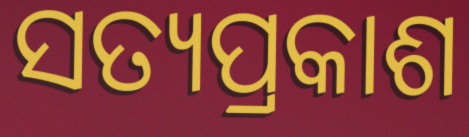
ସତ୍ୟପ୍ରକାଶ